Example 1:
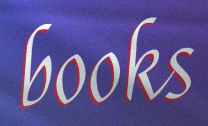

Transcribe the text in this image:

books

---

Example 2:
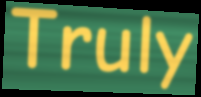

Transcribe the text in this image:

Truly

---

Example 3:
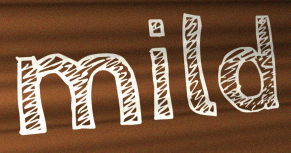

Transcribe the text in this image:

mild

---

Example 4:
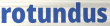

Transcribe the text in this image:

rotundus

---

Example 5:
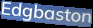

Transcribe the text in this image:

Edgbaston